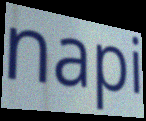
napi